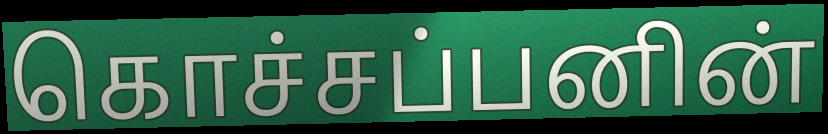
கொச்சப்பனின்